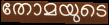
തോമയുടെ